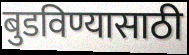
बुडविण्यासाठी